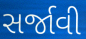
સર્જાવી